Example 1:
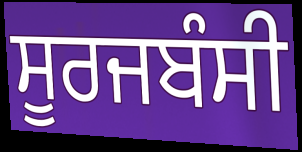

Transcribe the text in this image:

ਸੂਰਜਬੰਸੀ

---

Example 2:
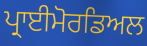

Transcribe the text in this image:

ਪ੍ਰਾਈਮੋਰਡਿਅਲ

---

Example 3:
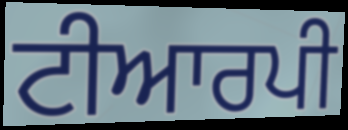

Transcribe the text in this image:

ਟੀਆਰਪੀ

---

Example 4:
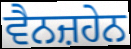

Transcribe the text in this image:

ਵੈਨਜ਼ਹੇਨ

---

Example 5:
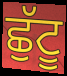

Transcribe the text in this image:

ਛੁੱਟੂ